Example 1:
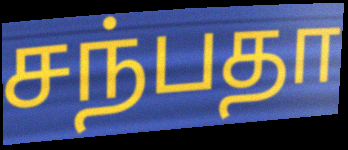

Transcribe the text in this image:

சந்பதா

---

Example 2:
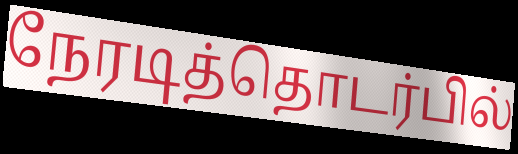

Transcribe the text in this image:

நேரடித்தொடர்பில்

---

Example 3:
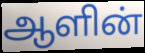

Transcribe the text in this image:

ஆளின்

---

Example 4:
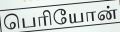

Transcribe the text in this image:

பெரியோன்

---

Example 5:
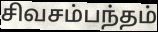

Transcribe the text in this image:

சிவசம்பந்தம்